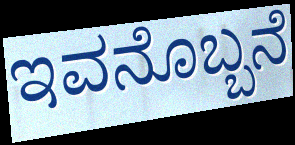
ಇವನೊಬ್ಬನೆ